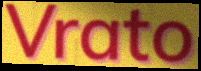
Vrato